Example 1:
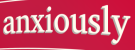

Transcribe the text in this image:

anxiously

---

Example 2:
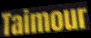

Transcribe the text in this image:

Taimour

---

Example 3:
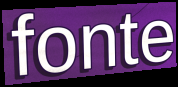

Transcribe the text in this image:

fonte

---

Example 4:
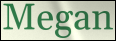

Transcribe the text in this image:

Megan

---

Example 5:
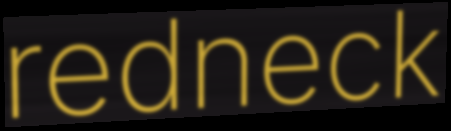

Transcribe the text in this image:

redneck